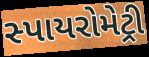
સ્પાયરોમેટ્રી